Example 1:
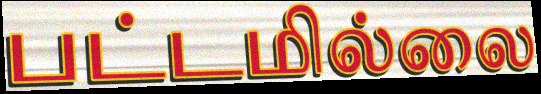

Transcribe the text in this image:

பட்டமில்லை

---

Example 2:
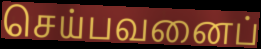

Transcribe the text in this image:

செய்பவனைப்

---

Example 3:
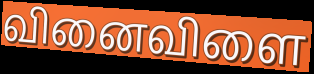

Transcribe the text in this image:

வினைவிளை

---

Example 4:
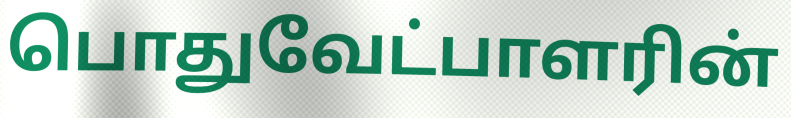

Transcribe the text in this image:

பொதுவேட்பாளரின்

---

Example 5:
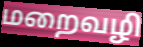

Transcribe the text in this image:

மறைவழி